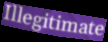
Illegitimate